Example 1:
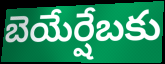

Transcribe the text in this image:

బెయేర్షేబకు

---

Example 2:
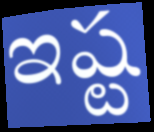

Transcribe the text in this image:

ఇష్ట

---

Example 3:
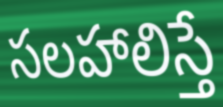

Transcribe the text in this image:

సలహాలిస్తే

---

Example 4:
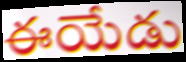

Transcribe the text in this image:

ఈయేడు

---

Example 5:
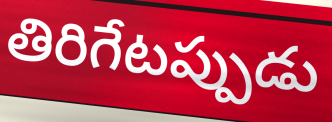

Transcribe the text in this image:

తిరిగేటప్పుడు